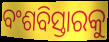
ବଂଶବିସ୍ତାରକୁ